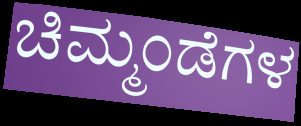
ಚಿಮ್ಮಂಡೆಗಳ